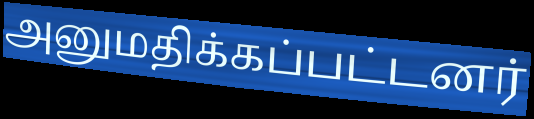
அனுமதிக்கப்பட்டனர்